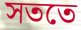
সততে